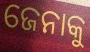
ଜେନାକୁ